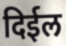
दिईल